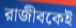
রাজীবকেই